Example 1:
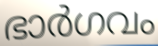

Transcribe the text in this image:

ഭാർഗവം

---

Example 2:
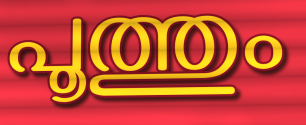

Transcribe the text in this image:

പൂത്തും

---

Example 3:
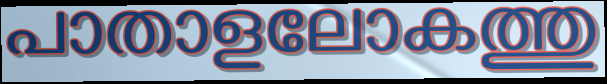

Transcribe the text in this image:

പാതാളലോകത്തു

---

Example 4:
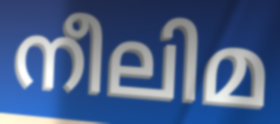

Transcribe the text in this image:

നീലിമ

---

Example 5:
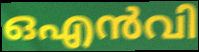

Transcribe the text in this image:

ഒഎൻവി